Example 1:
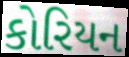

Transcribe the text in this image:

કોરિયન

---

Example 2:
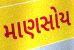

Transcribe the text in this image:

માણસોય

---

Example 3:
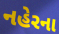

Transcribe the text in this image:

નહેરના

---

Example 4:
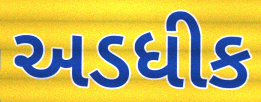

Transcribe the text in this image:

અડધીક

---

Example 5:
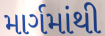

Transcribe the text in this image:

માર્ગમાંથી